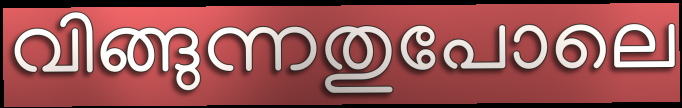
വിങ്ങുന്നതുപോലെ